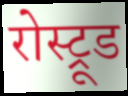
रोस्ट्रूड